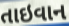
તાઇવાન